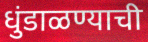
धुंडाळण्याची